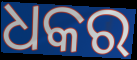
ଧକର